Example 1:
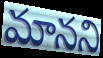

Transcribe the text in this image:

మానని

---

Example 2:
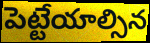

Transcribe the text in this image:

పెట్టేయాల్సిన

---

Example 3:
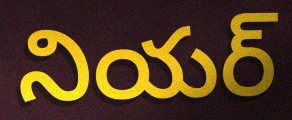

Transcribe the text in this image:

నియర్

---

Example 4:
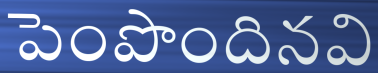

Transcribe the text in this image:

పెంపొందినవి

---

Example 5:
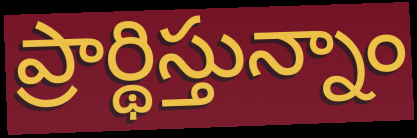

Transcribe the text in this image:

ప్రార్థిస్తున్నాం